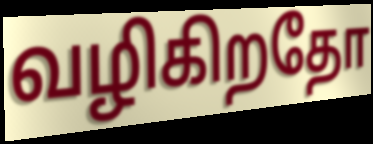
வழிகிறதோ